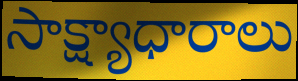
సాక్ష్యాధారాలు